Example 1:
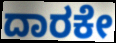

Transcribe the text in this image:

ದಾರಕೇ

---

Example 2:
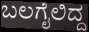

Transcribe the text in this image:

ಬಲಗೈಲಿದ್ದ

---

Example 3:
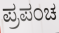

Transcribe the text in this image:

ಪ್ರಪಂಚ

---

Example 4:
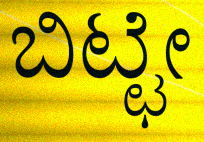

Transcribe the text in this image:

ಬಿಟ್ಟೇ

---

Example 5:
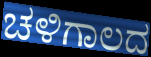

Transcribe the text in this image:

ಚಳಿಗಾಲದ